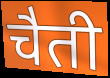
चैती